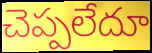
చెప్పలేదూ